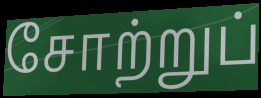
சோற்றுப்